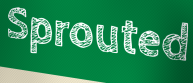
Sprouted